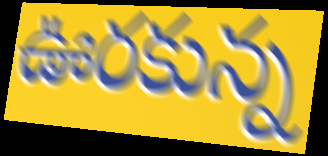
ఊరకున్న